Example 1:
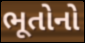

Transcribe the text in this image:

ભૂતોનો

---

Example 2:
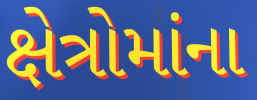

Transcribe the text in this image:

ક્ષેત્રોમાંના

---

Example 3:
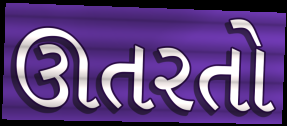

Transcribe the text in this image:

ઊતરતો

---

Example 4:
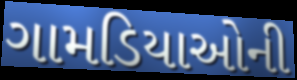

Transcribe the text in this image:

ગામડિયાઓની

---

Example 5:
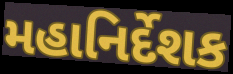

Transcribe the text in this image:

મહાનિર્દેશક